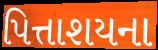
પિત્તાશયના